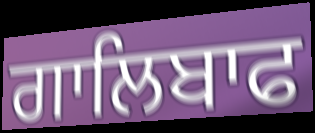
ਗਾਲਿਬਾਫ